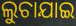
ଲୁଚାଯାଇ